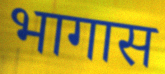
भागास